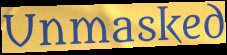
Unmasked